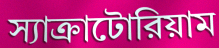
স্যাক্রাটোরিয়াম